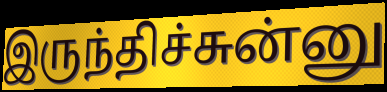
இருந்திச்சுன்னு